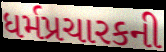
ધર્મપ્રચારકની